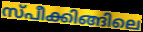
സ്പീക്കിങ്ങിലെ